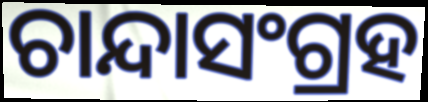
ଚାନ୍ଦାସଂଗ୍ରହ